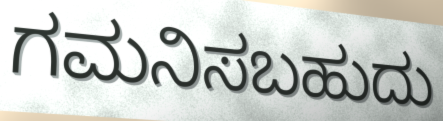
ಗಮನಿಸಬಹುದು